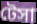
টেসা